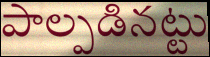
పాల్పడినట్టు